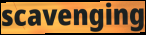
scavenging